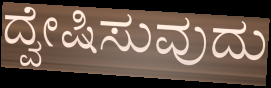
ದ್ವೇಷಿಸುವುದು